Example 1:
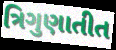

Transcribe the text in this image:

ત્રિગુણાતીત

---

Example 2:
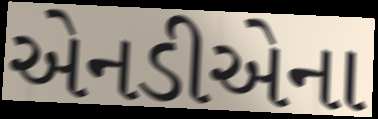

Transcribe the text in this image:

એનડીએના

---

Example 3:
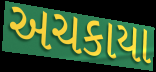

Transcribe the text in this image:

અચકાયા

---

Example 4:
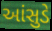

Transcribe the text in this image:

આંસુડે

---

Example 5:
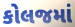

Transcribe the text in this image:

કોલજમાં